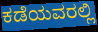
ಕಡೆಯವರಲ್ಲಿ